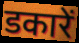
डकारें